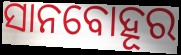
ସାନବୋହୂର